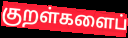
குறள்களைப்